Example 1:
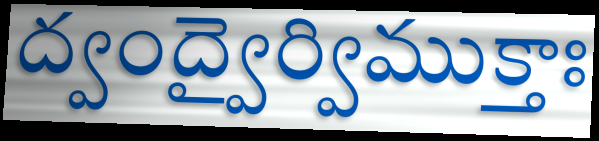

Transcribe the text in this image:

ద్వంద్వైర్విముక్తాః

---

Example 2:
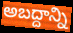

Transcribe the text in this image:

అబద్దాన్ని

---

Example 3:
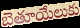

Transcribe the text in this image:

బెతూయేలుకు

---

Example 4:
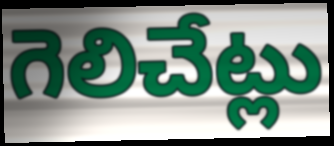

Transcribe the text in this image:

గెలిచేట్లు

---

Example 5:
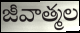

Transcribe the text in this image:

జీవాత్మల